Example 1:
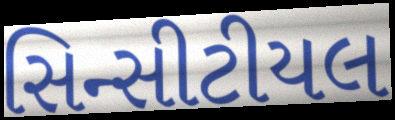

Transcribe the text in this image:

સિન્સીટીયલ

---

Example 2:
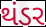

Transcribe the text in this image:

થંડર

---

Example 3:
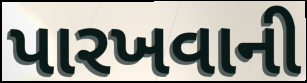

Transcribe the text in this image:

પારખવાની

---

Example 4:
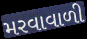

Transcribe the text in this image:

મરવાવાળી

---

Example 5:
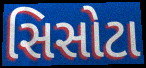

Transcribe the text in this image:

સિસોટા